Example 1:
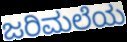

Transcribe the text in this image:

ಜರಿಮಲೆಯ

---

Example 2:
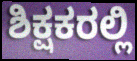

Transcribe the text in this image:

ಶಿಕ್ಷಕರಲ್ಲಿ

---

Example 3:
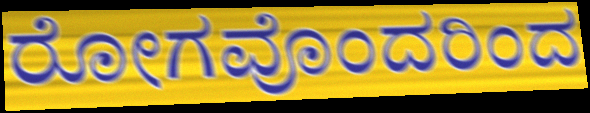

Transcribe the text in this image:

ರೋಗವೊಂದರಿಂದ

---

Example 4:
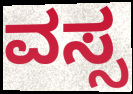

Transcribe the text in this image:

ವಸ್ಸ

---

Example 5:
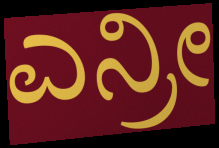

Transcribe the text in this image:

ಎನ್ರೀ